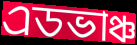
এডভাঞ্চ